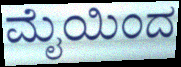
ಮೈಯಿಂದ